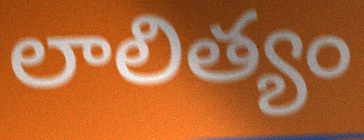
లాలిత్యం